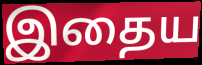
இதைய